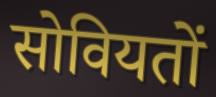
सोवियतों